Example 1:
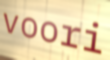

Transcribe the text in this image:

voori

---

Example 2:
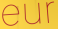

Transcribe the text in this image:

eur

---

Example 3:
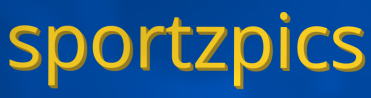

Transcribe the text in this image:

sportzpics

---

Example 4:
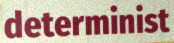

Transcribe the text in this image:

determinist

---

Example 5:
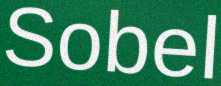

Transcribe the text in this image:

Sobel